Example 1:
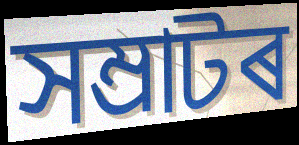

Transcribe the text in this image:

সম্ৰাটৰ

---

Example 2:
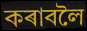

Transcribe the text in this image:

কৰাবলৈ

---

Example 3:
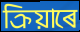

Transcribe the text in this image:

ক্ৰিয়াৰে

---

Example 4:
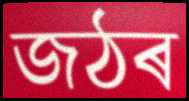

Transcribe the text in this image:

জঠৰ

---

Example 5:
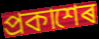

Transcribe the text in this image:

প্ৰকাশেৰ